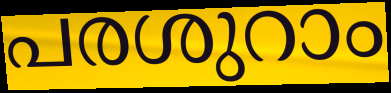
പരശുറാം